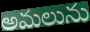
అమలును